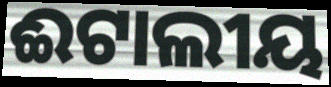
ଈଟାଲୀୟ